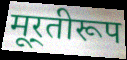
मूर्तीरूप